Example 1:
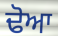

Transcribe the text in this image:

ਢੋਆ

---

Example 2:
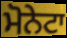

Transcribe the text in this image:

ਮੋਨੇਟਾ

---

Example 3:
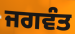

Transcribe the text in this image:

ਜਗਵੰਤ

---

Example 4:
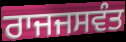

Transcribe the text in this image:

ਰਾਜਜਸਵੰਤ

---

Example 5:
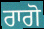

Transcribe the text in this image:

ਰਾਗੋ